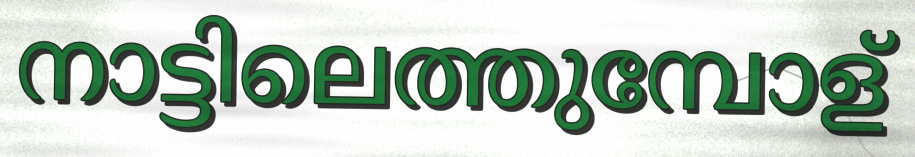
നാട്ടിലെത്തുമ്പോള്